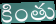
కింతు